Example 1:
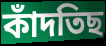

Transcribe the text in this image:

কাঁদতিছ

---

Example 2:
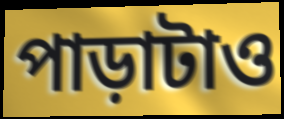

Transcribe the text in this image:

পাড়াটাও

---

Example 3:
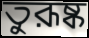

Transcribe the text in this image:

তুরূষ্ক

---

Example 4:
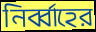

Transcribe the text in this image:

নির্ব্বাহের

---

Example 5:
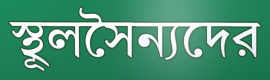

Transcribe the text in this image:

স্থূলসৈন্যদের